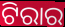
ଟିରାର